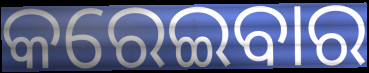
କରେଇବାର